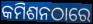
କମିଶନଠାରେ